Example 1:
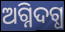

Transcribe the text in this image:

ଅଗ୍ନିଦଗ୍ଧ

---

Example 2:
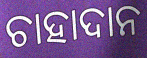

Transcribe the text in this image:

ଚାହାଦାନ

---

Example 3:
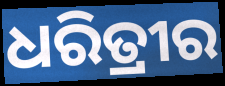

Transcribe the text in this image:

ଧରିତ୍ରୀର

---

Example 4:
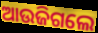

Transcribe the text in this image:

ଆଉଜିଗଲେ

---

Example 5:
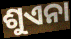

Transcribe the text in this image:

ଶୁଏନା